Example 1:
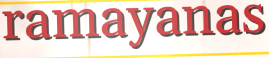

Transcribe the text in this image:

ramayanas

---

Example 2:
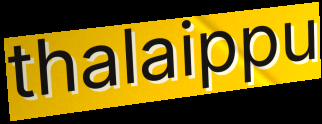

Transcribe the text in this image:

thalaippu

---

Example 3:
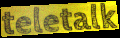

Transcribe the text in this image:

teletalk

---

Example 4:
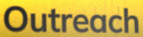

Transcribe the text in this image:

Outreach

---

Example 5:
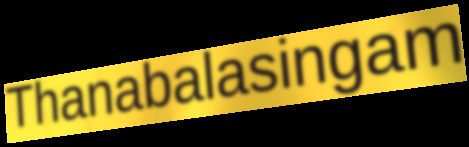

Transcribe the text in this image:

Thanabalasingam